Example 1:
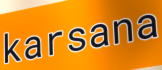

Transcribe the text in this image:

karsana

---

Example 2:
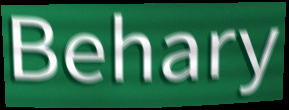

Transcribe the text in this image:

Behary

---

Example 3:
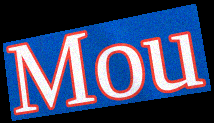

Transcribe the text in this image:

Mou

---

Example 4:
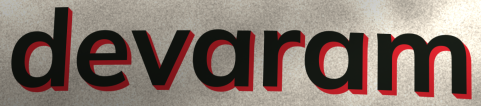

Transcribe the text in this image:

devaram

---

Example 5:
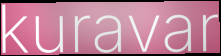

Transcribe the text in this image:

kuravar